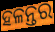
ହଳନ୍ତର